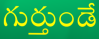
గుర్తుండే